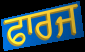
ਫਾਰਜ